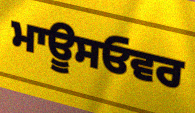
ਮਾਊਸਓਵਰ